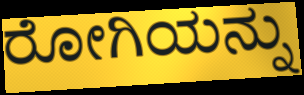
ರೋಗಿಯನ್ನು